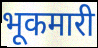
भूकमारी